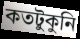
কতটুকুনি